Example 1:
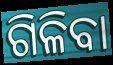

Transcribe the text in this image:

ଗିଳିବା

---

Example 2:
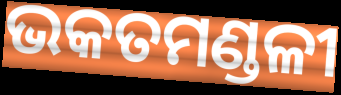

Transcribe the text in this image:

ଭକତମଣ୍ଡଳୀ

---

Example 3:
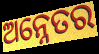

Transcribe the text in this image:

ଅନ୍ନେତର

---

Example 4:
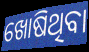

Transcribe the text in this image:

ଖୋଷିଥିବା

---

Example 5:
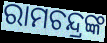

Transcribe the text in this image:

ରାମଚନ୍ଦ୍ରଙ୍କ